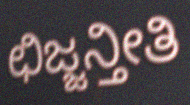
ಛಿಜ್ಜನ್ತೀತಿ